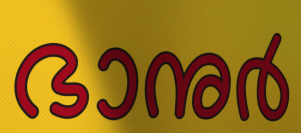
ഭാനുർ